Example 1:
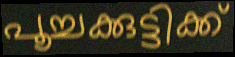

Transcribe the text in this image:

പൂച്ചക്കുട്ടിക്ക്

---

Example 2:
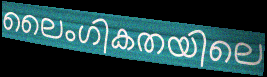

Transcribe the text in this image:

ലൈംഗികതയിലെ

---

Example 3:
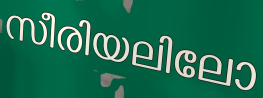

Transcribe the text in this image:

സീരിയലിലോ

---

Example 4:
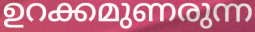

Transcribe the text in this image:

ഉറക്കമുണരുന്ന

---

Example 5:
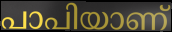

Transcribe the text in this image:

പാപിയാണ്